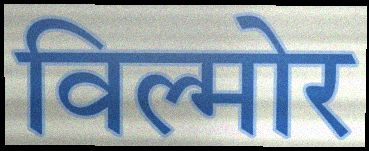
विल्मोर